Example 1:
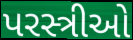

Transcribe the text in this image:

પરસ્ત્રીઓ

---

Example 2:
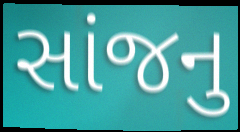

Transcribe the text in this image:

સાંજનુ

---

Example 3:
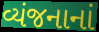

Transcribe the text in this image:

વ્યંજનાનાં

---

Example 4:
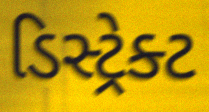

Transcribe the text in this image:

ડિસ્ટ્રેક્ટ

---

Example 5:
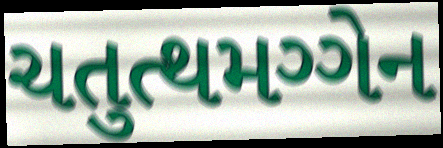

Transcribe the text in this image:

ચતુત્થમગ્ગેન